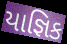
યાજ્ઞિક